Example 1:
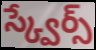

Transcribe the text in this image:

స్క్వేర్స్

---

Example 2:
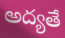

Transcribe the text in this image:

అద్యతే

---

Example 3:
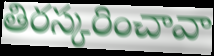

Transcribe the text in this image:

తిరస్కరించావా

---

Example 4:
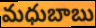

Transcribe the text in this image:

మధుబాబు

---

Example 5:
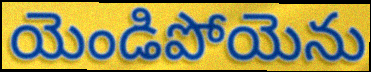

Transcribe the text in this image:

యెండిపోయెను